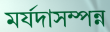
মৰ্যদাসম্পন্ন